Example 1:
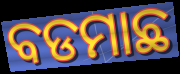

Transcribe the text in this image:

ବଡମାଛ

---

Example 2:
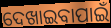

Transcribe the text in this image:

ଦେଖାଇବାପାଇଁ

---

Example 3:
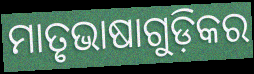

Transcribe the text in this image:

ମାତୃଭାଷାଗୁଡ଼ିକର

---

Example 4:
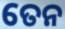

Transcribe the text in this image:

ତେନ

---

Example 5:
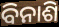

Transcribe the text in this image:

ବିନାଶି